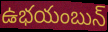
ఉభయంబున్